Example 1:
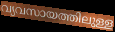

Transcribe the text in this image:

വ്യവസായത്തിലുള്ള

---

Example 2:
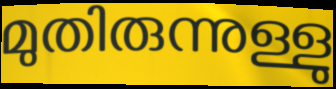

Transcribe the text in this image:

മുതിരുന്നുള്ളു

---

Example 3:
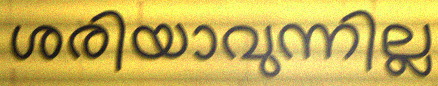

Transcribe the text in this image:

ശരിയാവുന്നില്ല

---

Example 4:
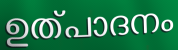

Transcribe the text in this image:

ഉത്പാദനം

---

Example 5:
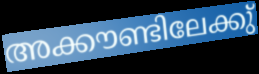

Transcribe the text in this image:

അക്കൗണ്ടിലേക്കു്